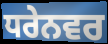
ਧਰੇਨਵਰ